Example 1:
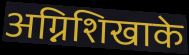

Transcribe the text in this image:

अग्निशिखाके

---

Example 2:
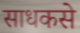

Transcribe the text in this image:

साधकसे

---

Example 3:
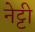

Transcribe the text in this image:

नेट्टी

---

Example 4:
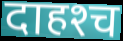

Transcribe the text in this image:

दाहश्च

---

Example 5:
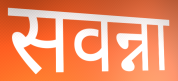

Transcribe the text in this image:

सवन्ना